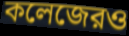
কলেজেরও